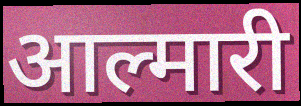
आल्मारी